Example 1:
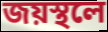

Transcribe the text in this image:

জয়স্থলে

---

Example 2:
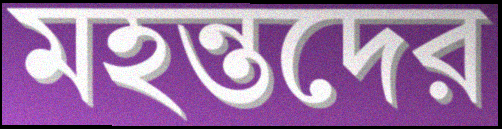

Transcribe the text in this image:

মহন্তদের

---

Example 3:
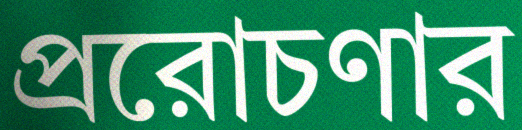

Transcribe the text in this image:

প্ররোচণার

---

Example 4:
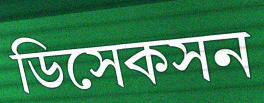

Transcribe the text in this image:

ডিসেকসন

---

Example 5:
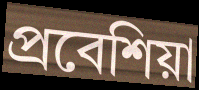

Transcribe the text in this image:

প্রবেশিয়া